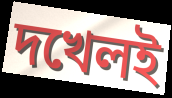
দখেলই